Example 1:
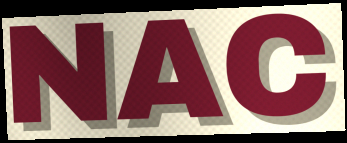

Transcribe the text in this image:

NAC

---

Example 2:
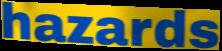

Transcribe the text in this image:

hazards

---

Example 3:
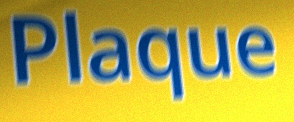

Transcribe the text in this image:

Plaque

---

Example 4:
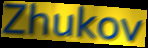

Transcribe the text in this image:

Zhukov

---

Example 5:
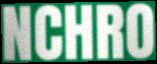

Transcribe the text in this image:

NCHRO